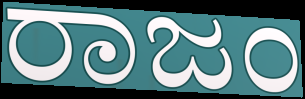
ರಾಜಂ